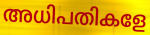
അധിപതികളേ